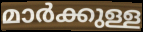
മാർക്കുള്ള